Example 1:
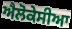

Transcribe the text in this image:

ਐਲੋਕੇਸੀਆ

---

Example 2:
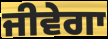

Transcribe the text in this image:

ਜੀਵੇਗਾ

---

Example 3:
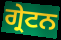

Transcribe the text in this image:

ਗ੍ਰੇਟਨ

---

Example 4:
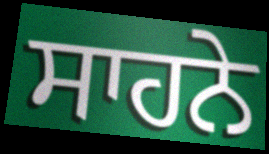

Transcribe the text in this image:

ਸਾਹਨੇ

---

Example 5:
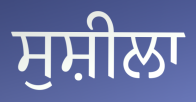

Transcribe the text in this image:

ਸੁਸ਼ੀਲਾ